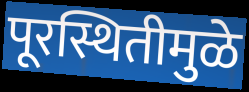
पूरस्थितीमुळे